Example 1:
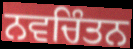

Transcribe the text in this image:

ਨਵਚਿੰਤਨ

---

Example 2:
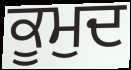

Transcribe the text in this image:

ਕੂਮੁਦ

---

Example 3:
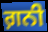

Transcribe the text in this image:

ਗ਼ਨੀ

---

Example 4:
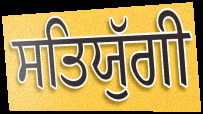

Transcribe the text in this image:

ਸਤਿਯੁੱਗੀ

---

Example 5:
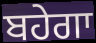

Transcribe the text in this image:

ਬਹੇਗਾ